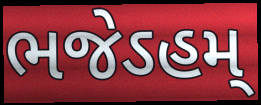
ભજેઽહમ્